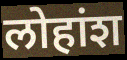
लोहांश